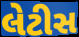
લેટીસ